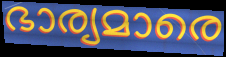
ഭാര്യമാരെ